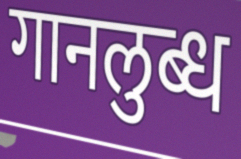
गानलुब्ध